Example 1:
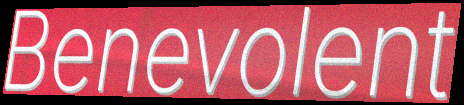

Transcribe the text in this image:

Benevolent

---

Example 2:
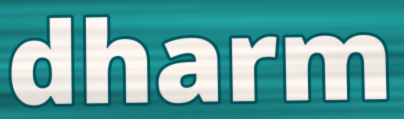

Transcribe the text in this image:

dharm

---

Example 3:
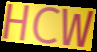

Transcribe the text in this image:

HCW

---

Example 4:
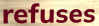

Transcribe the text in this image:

refuses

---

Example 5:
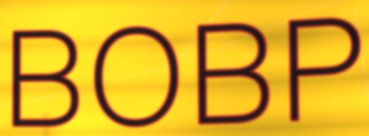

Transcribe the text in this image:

BOBP